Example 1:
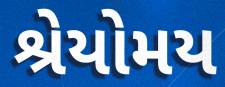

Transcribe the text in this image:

શ્રેયોમય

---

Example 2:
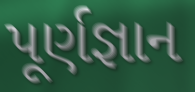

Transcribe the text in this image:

પૂર્ણજ્ઞાન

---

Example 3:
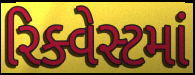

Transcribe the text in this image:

રિક્વેસ્ટમાં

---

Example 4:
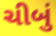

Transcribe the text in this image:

ચીબું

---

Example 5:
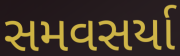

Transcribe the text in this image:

સમવસર્યા